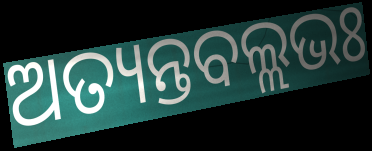
ଅତ୍ୟନ୍ତବଲ୍ଲଭଃ